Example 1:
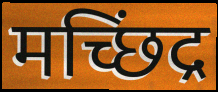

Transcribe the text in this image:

मच्छिंद्र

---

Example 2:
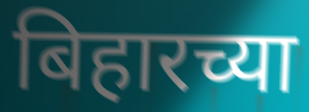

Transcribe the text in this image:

बिहारच्या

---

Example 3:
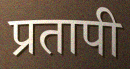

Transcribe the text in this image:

प्रतापी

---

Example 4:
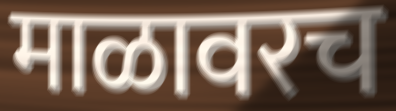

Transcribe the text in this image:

माळावरच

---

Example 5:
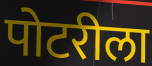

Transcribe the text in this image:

पोटरीला